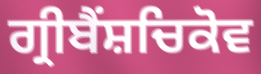
ਗ੍ਰੀਬੈਂਸ਼ਚਿਕੋਵ